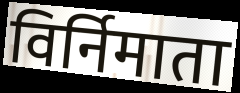
विर्निमाता